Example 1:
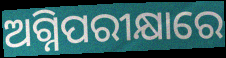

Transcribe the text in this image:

ଅଗ୍ନିପରୀକ୍ଷାରେ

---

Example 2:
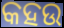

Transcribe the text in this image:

କହଉ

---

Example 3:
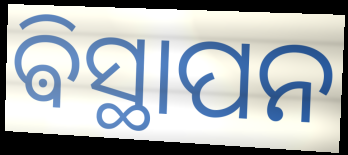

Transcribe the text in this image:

ଵିସ୍ଥାପନ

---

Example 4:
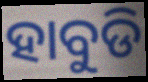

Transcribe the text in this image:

ହାବୁଡି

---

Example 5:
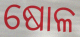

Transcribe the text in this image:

ଷୋଳ